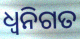
ଧ୍ୱନିଗତ